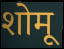
शोमू